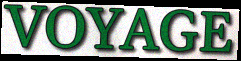
VOYAGE